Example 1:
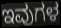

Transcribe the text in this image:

ಇವುಗಳ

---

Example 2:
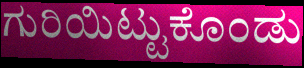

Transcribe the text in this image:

ಗುರಿಯಿಟ್ಟುಕೊಂಡು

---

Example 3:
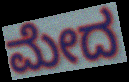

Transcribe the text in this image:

ಮೇದ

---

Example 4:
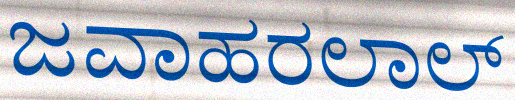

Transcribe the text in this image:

ಜವಾಹರಲಾಲ್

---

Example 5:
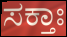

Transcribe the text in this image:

ಸಕ್ತಾಃ